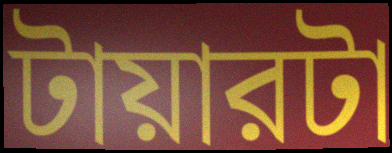
টায়ারটা